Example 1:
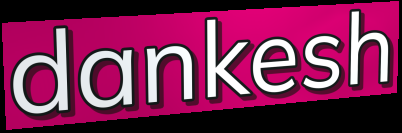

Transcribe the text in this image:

dankesh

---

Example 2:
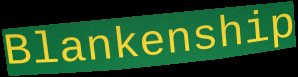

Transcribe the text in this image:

Blankenship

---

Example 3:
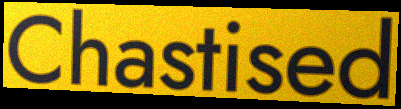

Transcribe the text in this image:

Chastised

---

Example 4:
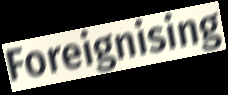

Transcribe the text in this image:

Foreignising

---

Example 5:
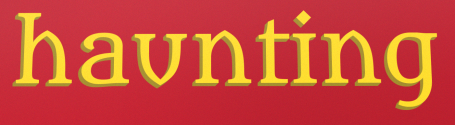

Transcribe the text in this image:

haunting